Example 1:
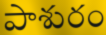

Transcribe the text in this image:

పాశురం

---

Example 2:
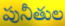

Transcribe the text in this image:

పునీతుల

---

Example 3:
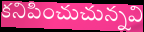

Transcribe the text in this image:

కనిపించుచున్నవి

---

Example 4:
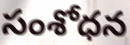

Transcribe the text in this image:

సంశోధన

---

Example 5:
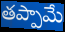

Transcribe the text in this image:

తప్పామే